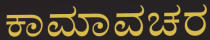
ಕಾಮಾವಚರ